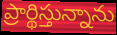
ప్రార్థిస్తున్నాను